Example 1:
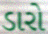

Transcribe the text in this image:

ડારો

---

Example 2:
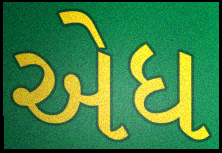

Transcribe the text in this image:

એધ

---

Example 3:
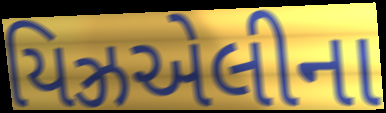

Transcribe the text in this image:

યિઝ્રએલીના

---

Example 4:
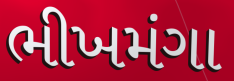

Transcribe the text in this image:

ભીખમંગા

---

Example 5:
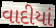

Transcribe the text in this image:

વાદીયાં